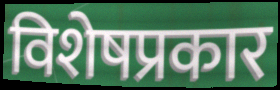
विशेषप्रकार